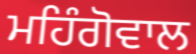
ਮਹਿੰਗੋਵਾਲ